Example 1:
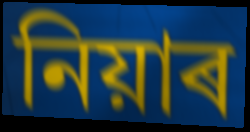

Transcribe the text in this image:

নিয়াৰ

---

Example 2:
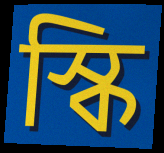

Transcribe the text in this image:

স্কি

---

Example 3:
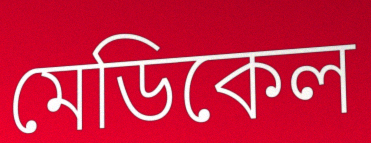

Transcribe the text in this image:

মেডিকেল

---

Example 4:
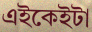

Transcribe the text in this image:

এইকেইটা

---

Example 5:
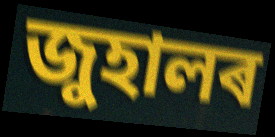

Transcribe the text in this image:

জুহালৰ